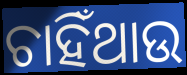
ଚାହିଁଥାଉ